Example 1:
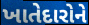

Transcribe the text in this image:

ખાતેદારોને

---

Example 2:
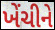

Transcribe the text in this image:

ખેંચીને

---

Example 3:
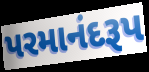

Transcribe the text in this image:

પરમાનંદરૂપ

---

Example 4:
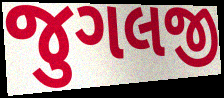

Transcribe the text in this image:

જુગલજી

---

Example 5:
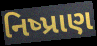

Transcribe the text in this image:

નિષ્પ્રાણ